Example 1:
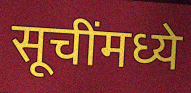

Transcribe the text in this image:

सूचींमध्ये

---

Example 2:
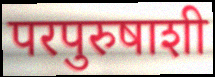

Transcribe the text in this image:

परपुरुषाशी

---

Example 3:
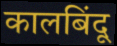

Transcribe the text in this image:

कालबिंदू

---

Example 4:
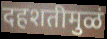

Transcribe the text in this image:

दहशतीमुळं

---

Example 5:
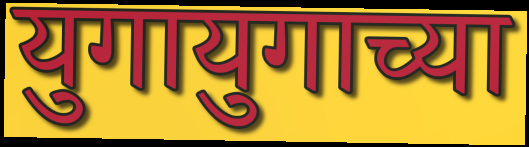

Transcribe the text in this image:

युगायुगाच्या